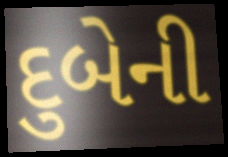
દુબેની